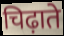
चिढ़ाते